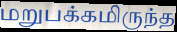
மறுபக்கமிருந்த